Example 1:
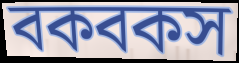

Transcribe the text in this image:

বকবকস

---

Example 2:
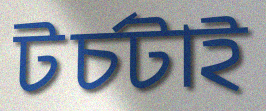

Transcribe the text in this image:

টর্চটাই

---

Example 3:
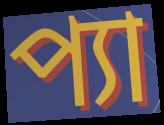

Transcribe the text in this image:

প্যা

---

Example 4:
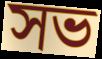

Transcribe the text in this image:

সভ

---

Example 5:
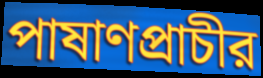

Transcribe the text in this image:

পাষাণপ্রাচীর